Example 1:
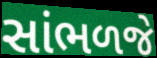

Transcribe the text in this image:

સાંભળજે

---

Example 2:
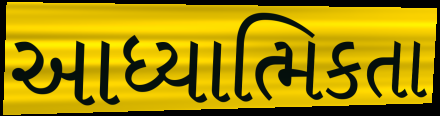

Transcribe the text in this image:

આધ્યાત્મિકતા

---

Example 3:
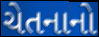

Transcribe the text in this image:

ચેતનાનો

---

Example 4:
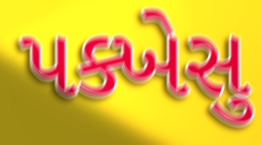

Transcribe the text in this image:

પક્ખેસુ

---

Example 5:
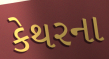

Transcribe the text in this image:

કેથરના